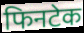
फिनटेक